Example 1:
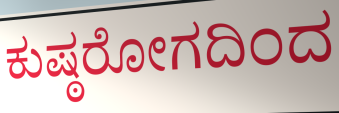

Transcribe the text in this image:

ಕುಷ್ಠರೋಗದಿಂದ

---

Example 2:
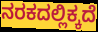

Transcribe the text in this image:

ನರಕದಲ್ಲಿಕ್ಕದೆ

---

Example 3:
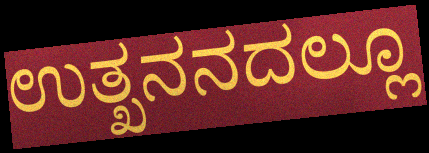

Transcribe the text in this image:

ಉತ್ಖನನದಲ್ಲೂ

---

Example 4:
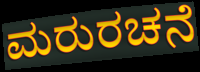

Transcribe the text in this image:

ಮರುರಚನೆ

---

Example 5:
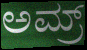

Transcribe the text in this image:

ಅಮ್ರ್